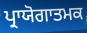
ਪ੍ਰਾਯੋਗਾਤਮਕ